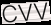
CVV